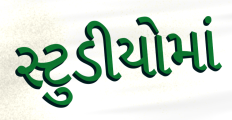
સ્ટુડીયોમાં